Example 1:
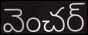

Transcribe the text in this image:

వెంచర్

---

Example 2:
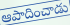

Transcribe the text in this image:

ఆపాదించాడు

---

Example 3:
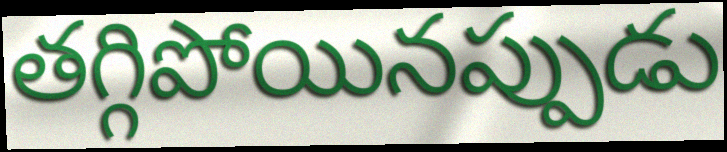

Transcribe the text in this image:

తగ్గిపోయినప్పుడు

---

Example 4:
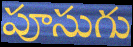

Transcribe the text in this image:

పూసుగు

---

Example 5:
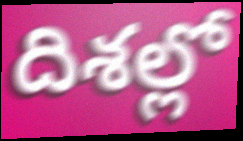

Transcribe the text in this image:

దిశల్లో